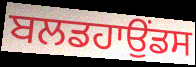
ਬਲਡਹਾਉਂਡਸ